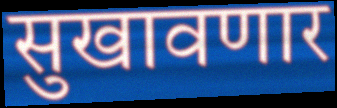
सुखावणार